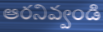
ఆరనివ్వండి